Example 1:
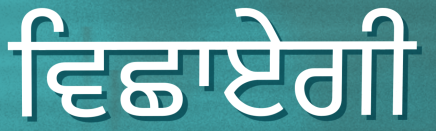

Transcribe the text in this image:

ਵਿਛਾਏਗੀ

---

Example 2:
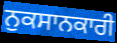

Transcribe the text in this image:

ਨੁਕਸਾਨਕਾਰੀ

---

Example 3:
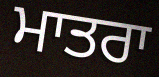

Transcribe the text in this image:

ਮਾਤਰਾ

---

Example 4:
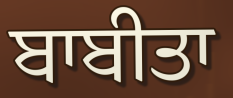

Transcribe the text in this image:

ਬਾਬੀਤਾ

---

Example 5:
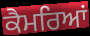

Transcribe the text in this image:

ਕੈਮਰਿਆਂ